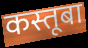
कस्तूबा